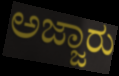
ಅಜ್ಜಾರು